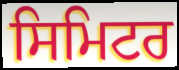
ਸਿਮਿਟਰ